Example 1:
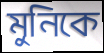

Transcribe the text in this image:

মুনিকে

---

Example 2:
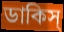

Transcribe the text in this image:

ডাকিস্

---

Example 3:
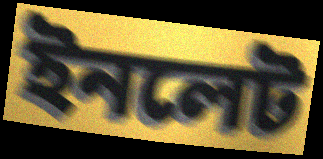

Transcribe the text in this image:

ইনলেট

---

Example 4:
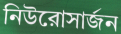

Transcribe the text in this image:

নিউরোসার্জন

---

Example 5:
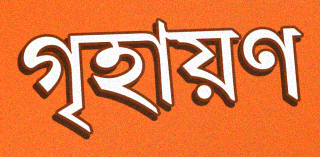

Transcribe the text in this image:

গৃহায়ণ